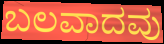
ಬಲವಾದವು